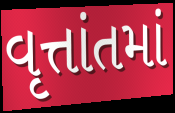
વૃત્તાંતમાં